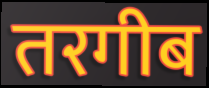
तरगीब